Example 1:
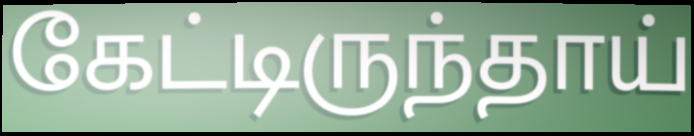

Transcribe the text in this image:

கேட்டிருந்தாய்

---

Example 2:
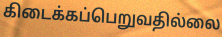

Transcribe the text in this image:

கிடைக்கப்பெறுவதில்லை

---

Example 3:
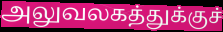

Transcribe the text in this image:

அலுவலகத்துக்குச்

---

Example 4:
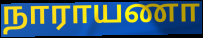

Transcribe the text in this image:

நாராயணா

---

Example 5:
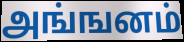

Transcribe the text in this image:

அங்ஙனம்